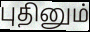
புதினும்